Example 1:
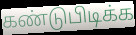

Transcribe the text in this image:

கண்டுபிடிக்க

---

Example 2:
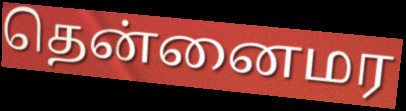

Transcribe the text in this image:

தென்னைமர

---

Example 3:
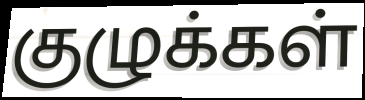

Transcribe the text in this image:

குழுக்கள்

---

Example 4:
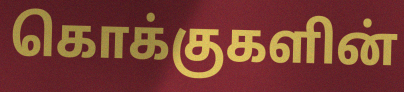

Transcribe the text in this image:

கொக்குகளின்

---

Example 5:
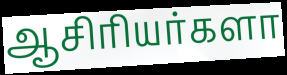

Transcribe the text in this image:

ஆசிரியர்களா